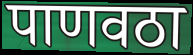
पाणवठा